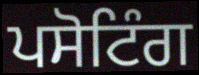
ਪਸੋਟਿੰਗ